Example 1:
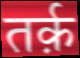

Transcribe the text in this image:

तर्क़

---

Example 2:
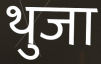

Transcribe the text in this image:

थुजा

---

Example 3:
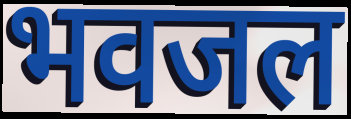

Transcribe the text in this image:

भवजल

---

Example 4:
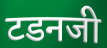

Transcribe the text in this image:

टडनजी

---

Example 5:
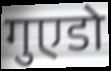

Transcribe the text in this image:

गुएडो